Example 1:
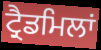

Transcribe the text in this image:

ਟ੍ਰੈਡਮਿਲਾਂ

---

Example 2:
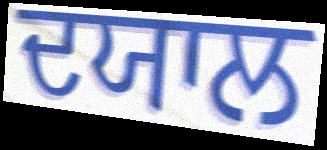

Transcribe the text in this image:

ਦਯਾਲ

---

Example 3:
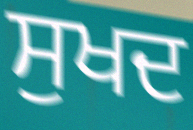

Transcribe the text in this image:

ਸੁਖਦ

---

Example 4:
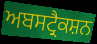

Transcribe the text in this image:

ਅਬਸਟ੍ਰੈਕਸ਼ਨ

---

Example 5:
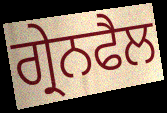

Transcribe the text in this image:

ਗ੍ਰੇਨਫੈਲ